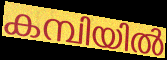
കമ്പിയിൽ